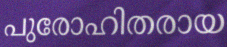
പുരോഹിതരായ